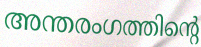
അന്തരംഗത്തിന്റെ